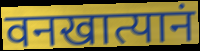
वनखात्यानं